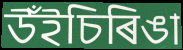
উঁইচিৰিঙা